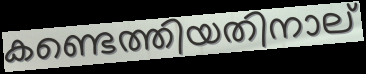
കണ്ടെത്തിയതിനാല്